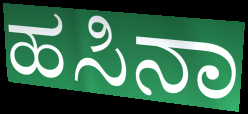
ಹಸಿನಾ